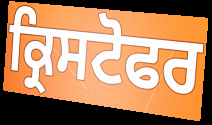
ਕ੍ਰਿਸਟੋਫਰ